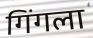
गिंगला